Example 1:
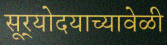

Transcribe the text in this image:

सूर्योदयाच्यावेळी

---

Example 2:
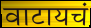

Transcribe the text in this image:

वाटायचं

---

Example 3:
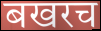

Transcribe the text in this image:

बखरच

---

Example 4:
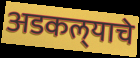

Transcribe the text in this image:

अडकल्याचे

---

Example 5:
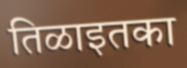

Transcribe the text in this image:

तिळाइतका